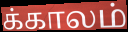
க்காலம்